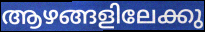
ആഴങ്ങളിലേക്കു